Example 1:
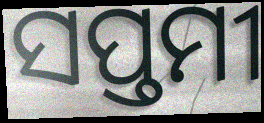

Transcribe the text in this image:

ସପ୍ତମୀ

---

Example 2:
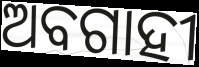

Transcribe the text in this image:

ଅବଗାହୀ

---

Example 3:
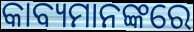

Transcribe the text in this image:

କାବ୍ୟମାନଙ୍କରେ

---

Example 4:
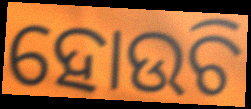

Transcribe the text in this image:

ହୋଉଚି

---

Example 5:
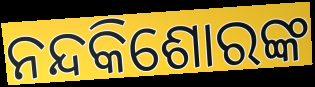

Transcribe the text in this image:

ନନ୍ଦକିଶୋରଙ୍କ